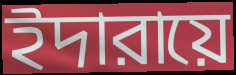
ইদারায়ে